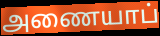
அணையாப்